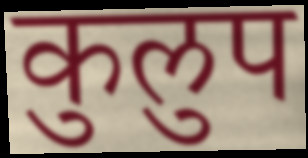
कुलुप